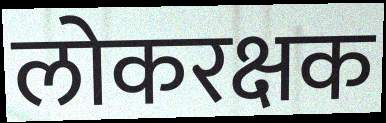
लोकरक्षक